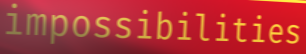
impossibilities